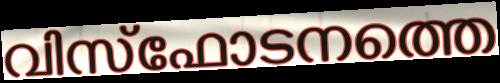
വിസ്ഫോടനത്തെ